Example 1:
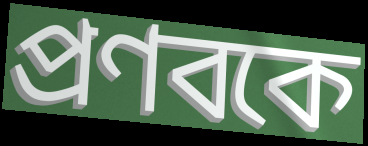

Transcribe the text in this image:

প্রণবকে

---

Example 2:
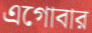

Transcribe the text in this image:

এগোবার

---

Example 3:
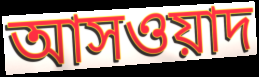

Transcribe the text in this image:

আসওয়াদ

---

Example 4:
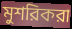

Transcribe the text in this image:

মুশরিকরা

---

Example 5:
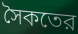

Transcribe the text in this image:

সৈকতের